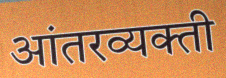
आंतरव्यक्ती